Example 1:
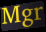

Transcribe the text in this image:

Mgr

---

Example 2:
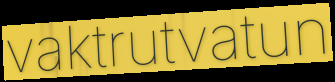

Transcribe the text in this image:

vaktrutvatun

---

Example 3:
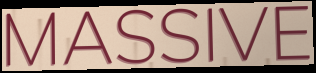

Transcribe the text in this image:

MASSIVE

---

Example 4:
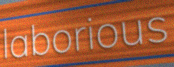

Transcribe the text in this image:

laborious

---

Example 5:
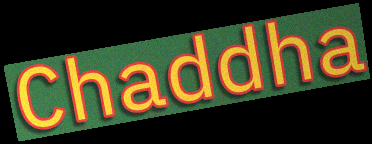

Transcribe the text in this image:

Chaddha